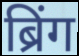
ब्रिंग